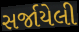
સર્જાયેલી